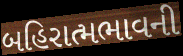
બહિરાત્મભાવની